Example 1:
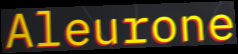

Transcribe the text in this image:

Aleurone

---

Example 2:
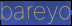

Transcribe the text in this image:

bareyo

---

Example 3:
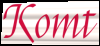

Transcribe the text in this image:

Komt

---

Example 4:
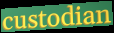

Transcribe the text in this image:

custodian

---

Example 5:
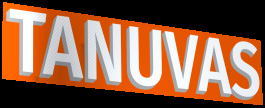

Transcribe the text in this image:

TANUVAS